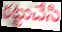
కట్టుచేసి